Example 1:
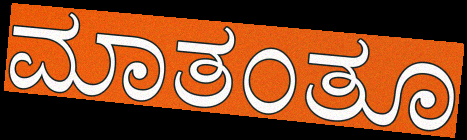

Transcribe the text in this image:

ಮಾತಂತೂ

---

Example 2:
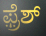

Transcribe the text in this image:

ಫ಼್ರೆಶ್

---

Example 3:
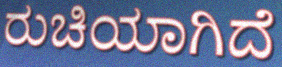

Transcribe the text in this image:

ರುಚಿಯಾಗಿದೆ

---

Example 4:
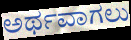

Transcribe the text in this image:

ಅರ್ಥವಾಗಲು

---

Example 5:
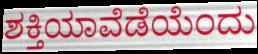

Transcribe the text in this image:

ಶಕ್ತಿಯಾವೆಡೆಯೆಂದು